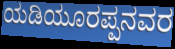
ಯಡಿಯೂರಪ್ಪನವರ